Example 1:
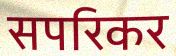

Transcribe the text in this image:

सपरिकर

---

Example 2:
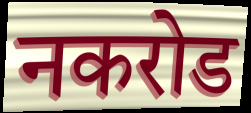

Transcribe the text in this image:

नकरोड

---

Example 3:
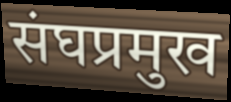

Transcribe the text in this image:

संघप्रमुख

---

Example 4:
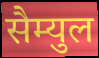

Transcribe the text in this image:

सैम्युल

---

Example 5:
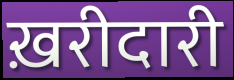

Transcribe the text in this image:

ख़रीदारी